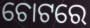
ଚୋଟରେ